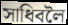
সাধিবলৈ